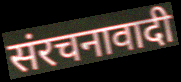
संरचनावादी